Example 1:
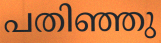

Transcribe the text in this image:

പതിഞ്ഞു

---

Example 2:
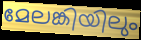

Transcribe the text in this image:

മേലങ്കിയിലും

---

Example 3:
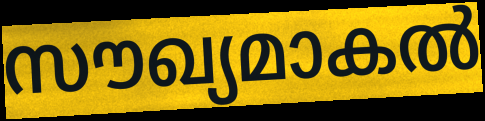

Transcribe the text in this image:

സൗഖ്യമാകൽ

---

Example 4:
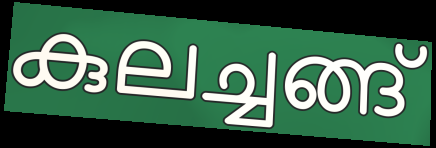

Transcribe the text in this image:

കുലച്ചങ്ങ്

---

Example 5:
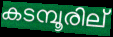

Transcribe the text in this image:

കടമ്പൂരില്